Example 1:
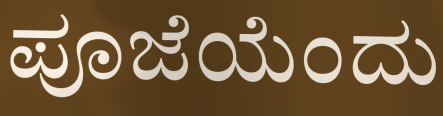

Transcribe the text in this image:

ಪೂಜೆಯೆಂದು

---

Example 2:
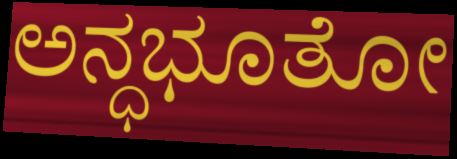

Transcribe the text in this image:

ಅನ್ಧಭೂತೋ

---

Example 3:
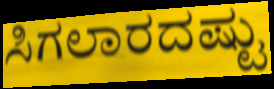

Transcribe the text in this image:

ಸಿಗಲಾರದಷ್ಟು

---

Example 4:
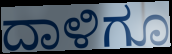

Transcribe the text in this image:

ದಾಳಿಗೂ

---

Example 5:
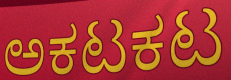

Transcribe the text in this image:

ಅಕಟಕಟ